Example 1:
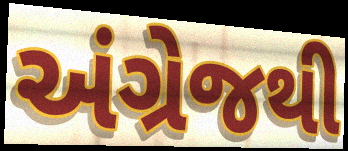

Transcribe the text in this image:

અંગ્રેજથી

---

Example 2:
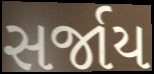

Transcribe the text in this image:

સર્જાય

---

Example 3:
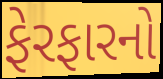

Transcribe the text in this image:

ફેરફારનો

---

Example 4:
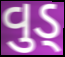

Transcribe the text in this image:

વુડ્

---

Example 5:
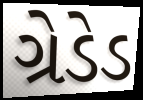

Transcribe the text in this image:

ગ્રેડેડ